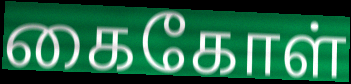
கைகோள்